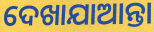
ଦେଖାଯାଆନ୍ତା